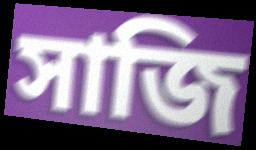
সাজি